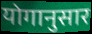
योगानुसार